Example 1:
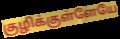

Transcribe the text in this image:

குழிக்குள்ளேயே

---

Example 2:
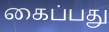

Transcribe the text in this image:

கைப்பது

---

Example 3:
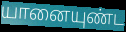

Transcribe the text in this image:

யானையுண்ட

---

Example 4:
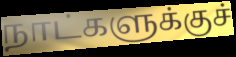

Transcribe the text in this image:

நாட்களுக்குச்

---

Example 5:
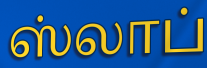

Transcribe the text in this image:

ஸ்லாப்